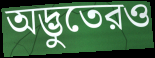
অদ্ভুতেরও